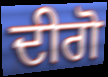
ਦੀਗੋ